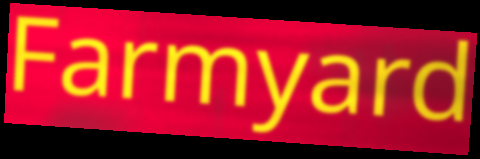
Farmyard